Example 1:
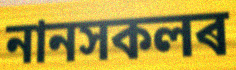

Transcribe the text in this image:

নানসকলৰ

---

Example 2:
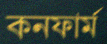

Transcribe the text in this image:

কনফাৰ্ম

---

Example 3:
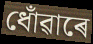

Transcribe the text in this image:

ধোঁৱাৰে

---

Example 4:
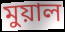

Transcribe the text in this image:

মুয়াল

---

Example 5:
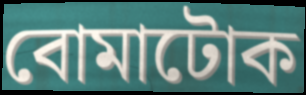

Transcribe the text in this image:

বোমাটোক